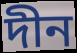
দীন